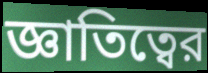
জ্ঞাতিত্বের